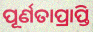
ପୂର୍ଣତାପ୍ରାପ୍ତି